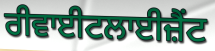
ਰੀਵਾਈਟਲਾਈਜ਼ੈਂਟ